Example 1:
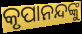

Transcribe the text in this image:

କୃପାନନ୍ଦଙ୍କୁ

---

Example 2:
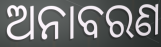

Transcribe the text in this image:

ଅନାବରଣ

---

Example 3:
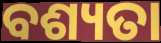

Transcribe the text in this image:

ବଶ୍ୟତା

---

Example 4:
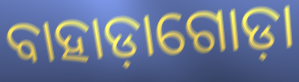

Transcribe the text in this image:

ବାହାଡ଼ାଗୋଡ଼ା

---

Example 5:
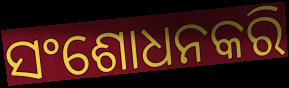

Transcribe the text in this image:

ସଂଶୋଧନକରି